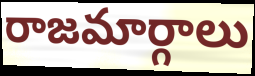
రాజమార్గాలు